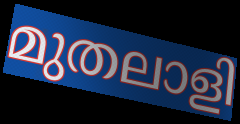
മുതലാളി